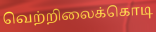
வெற்றிலைக்கொடி